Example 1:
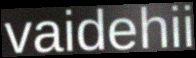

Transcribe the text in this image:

vaidehii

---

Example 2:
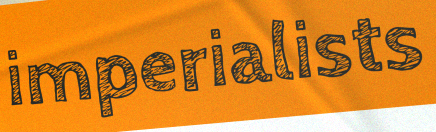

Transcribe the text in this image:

imperialists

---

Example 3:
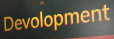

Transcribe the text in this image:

Devolopment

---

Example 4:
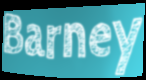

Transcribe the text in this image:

Barney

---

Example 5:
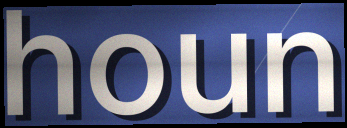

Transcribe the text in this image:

houn